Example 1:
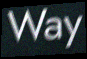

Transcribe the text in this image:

Way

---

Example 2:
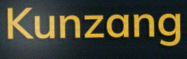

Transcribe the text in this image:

Kunzang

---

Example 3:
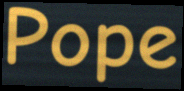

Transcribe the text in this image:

Pope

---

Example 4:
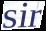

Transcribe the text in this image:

sir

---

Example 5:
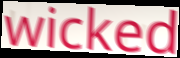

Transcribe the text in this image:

wicked